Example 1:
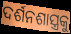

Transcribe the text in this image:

ଦର୍ଶନଶାସ୍ତ୍ରକୁ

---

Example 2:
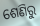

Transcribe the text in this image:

ଶେଣିରୁ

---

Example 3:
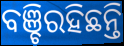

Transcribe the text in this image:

ବଞ୍ଚିରହିଛନ୍ତି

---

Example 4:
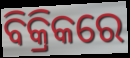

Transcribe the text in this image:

ବିକ୍ରିକରେ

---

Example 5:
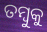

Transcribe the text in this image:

ତମ୍ବୁକୁ